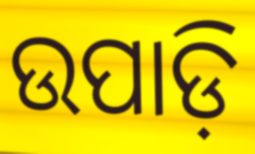
ଉପାଡ଼ି